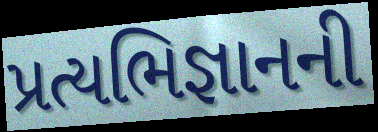
પ્રત્યભિજ્ઞાનની